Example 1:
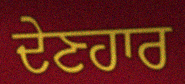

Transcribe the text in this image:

ਦੇਣਹਾਰ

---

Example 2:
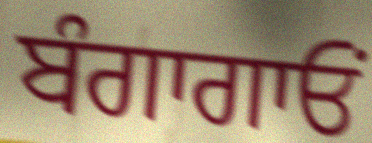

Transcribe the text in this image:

ਬੰਗਾਗਾਓਂ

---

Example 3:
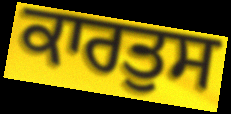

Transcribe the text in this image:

ਕਾਰਤੁਸ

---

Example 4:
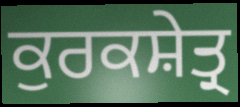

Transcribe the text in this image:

ਕੁਰਕਸ਼ੇਤ੍ਰ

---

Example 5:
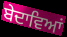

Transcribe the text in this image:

ਬੇਦਾਵਿਆਂ